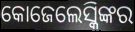
କୋଜେଲେସ୍କିଙ୍କର